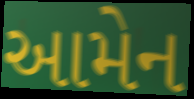
આમેન